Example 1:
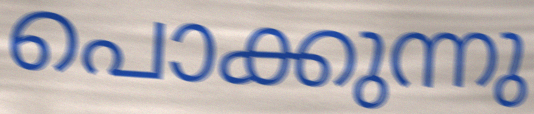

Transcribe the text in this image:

പൊക്കുന്നു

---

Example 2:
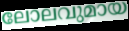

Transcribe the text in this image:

ലോലവുമായ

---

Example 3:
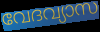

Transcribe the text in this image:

വേദവ്യാസ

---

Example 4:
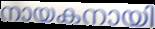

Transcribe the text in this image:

നായകനായി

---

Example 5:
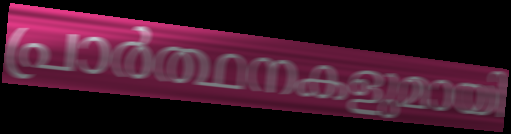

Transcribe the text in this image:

പ്രാർത്ഥനകളുമായി